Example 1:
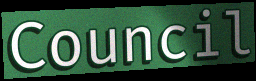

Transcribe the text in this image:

Council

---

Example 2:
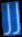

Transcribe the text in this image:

JJ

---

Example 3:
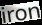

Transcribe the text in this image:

iron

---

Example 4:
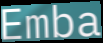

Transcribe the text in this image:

Emba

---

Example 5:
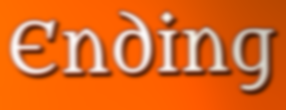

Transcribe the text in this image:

Ending